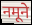
नमूने